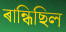
ৰান্ধিছিল